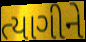
ત્યાગીને